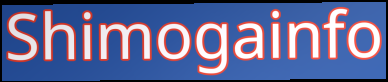
Shimogainfo